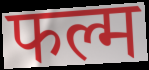
फल्म